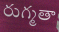
రుగ్మతా